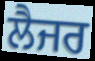
ਲੈਜਰ